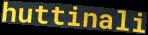
huttinali